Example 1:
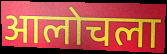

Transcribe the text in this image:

आलोचला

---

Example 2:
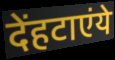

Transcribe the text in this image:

देंहटाएंये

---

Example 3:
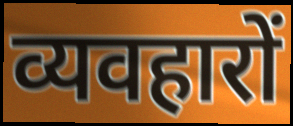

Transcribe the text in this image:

व्यवहारों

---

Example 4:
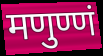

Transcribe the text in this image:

मणुण्णं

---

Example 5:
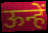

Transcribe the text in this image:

ऊन्हें